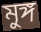
মুঙ্গ